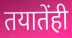
तयातेंही